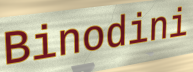
Binodini